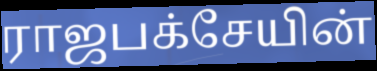
ராஜபக்சேயின்